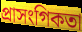
প্ৰাসংগিকতা